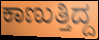
ಕಾಣುತ್ತಿದ್ದ